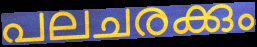
പലചരക്കും